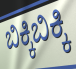
ಬಿಕ್ಕಿಬಿಕ್ಕಿ